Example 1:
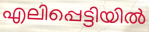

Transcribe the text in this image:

എലിപ്പെട്ടിയിൽ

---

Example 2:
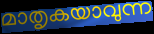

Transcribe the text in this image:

മാതൃകയാവുന്ന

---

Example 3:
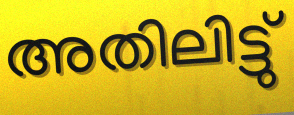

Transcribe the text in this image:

അതിലിട്ടു്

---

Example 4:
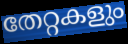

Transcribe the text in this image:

തേറ്റകളും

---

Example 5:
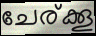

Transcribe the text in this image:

ചേര്ക്കൂ